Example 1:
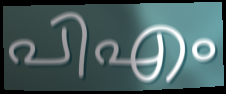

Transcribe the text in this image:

പിഎം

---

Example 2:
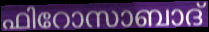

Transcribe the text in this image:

ഫിറോസാബാദ്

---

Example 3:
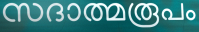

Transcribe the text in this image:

സദാത്മരൂപം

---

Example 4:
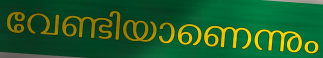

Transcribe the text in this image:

വേണ്ടിയാണെന്നും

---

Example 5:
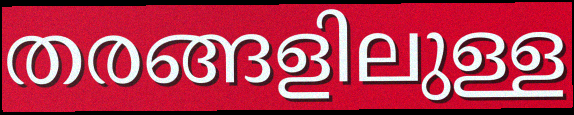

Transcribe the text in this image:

തരങ്ങളിലുള്ള